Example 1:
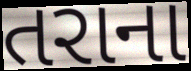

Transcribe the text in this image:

તરાના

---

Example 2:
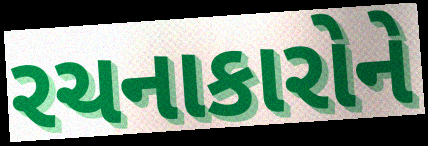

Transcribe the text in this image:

રચનાકારોને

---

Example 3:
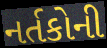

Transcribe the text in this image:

નર્તકોની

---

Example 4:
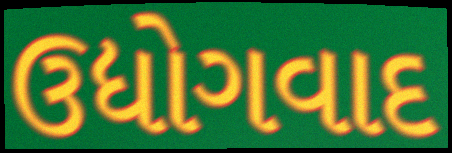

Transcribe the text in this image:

ઉદ્યોગવાદ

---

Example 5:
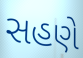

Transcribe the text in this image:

સહણે